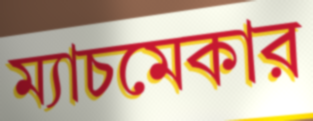
ম্যাচমেকার